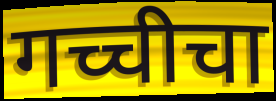
गच्चीचा